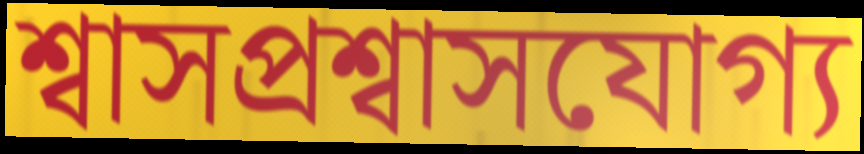
শ্বাসপ্রশ্বাসযোগ্য